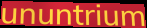
ununtrium